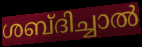
ശബ്ദിച്ചാൽ